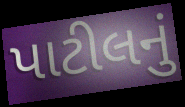
પાટીલનું